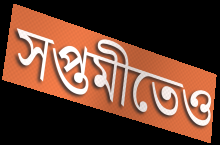
সপ্তমীতেও